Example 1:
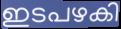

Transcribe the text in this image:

ഇടപഴകി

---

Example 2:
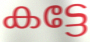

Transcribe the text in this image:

കട്ടേ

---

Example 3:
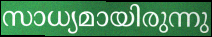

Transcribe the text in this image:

സാധ്യമായിരുന്നു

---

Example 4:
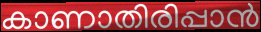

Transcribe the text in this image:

കാണാതിരിപ്പാൻ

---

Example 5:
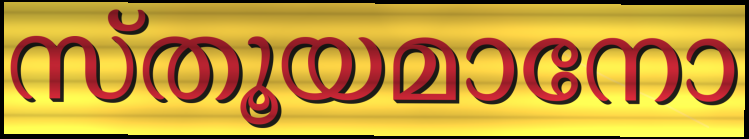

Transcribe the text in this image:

സ്തൂയമാനോ